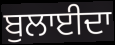
ਬੁਲਾਈਦਾ